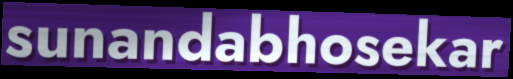
sunandabhosekar